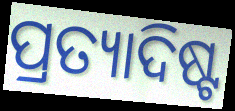
ପ୍ରତ୍ୟାଦିଷ୍ଟ